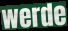
werde